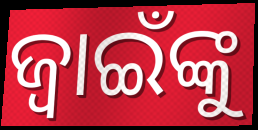
ଜ୍ବାଇଁଙ୍କୁ